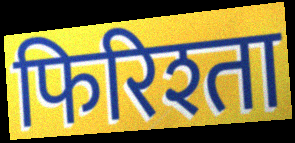
फिरिश्ता